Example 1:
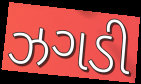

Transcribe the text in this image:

ઝગડી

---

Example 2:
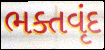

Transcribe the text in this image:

ભક્તવૃંદ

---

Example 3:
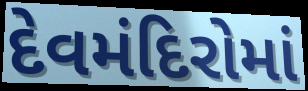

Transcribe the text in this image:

દેવમંદિરોમાં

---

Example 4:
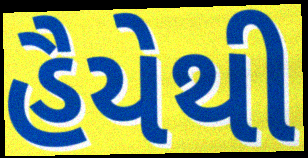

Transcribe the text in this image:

હૈયેથી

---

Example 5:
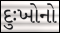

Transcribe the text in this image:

દુઃખોનો